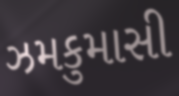
ઝમકુમાસી